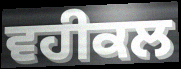
ਵਹੀਕਲ